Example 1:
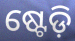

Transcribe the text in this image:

ଷ୍ଟେଡ଼ି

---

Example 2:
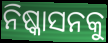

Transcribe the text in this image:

ନିଷ୍କାସନକୁ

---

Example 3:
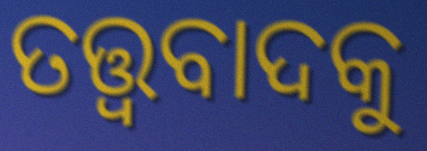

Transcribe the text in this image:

ତତ୍ତ୍ୱବାଦକୁ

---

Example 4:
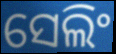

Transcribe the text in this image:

ସେଲିଂ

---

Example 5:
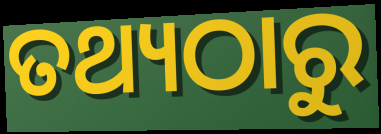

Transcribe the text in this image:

ତଥ୍ୟଠାରୁ